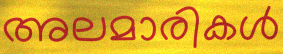
അലമാരികൾ